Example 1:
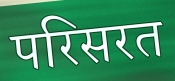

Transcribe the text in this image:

परिसरत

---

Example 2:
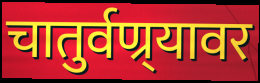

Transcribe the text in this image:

चातुर्वण्र्यावर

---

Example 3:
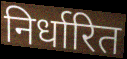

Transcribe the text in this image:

निर्धारित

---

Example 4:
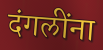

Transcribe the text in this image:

दंगलींना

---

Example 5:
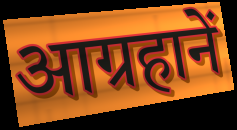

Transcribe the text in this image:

आग्रहानें